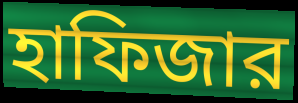
হাফিজার